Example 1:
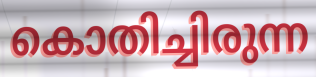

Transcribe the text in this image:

കൊതിച്ചിരുന്ന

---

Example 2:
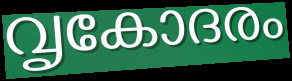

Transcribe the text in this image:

വൃകോദരം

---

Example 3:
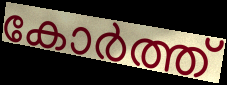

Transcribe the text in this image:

കോർത്ത്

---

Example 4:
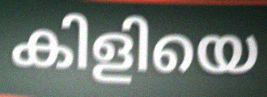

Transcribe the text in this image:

കിളിയെ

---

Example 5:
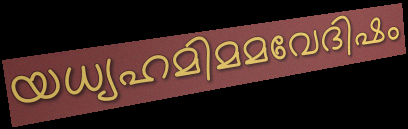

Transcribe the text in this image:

യധ്യഹമിമമവേദിഷം